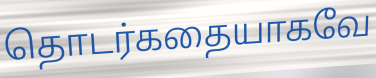
தொடர்கதையாகவே